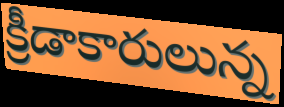
క్రీడాకారులున్న